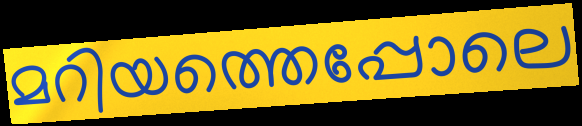
മറിയത്തെപ്പോലെ